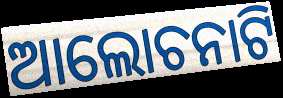
ଆଲୋଚନାଟି